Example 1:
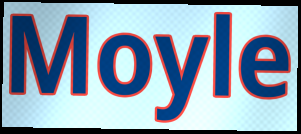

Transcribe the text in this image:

Moyle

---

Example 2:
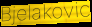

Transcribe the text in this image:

Bjelakovic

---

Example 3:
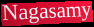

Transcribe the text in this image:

Nagasamy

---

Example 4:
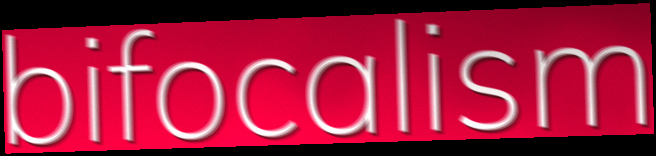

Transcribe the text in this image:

bifocalism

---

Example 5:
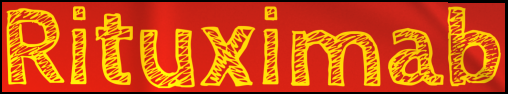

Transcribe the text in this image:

Rituximab